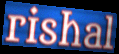
rishal